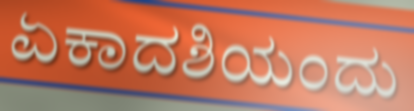
ಏಕಾದಶಿಯಂದು